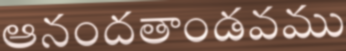
ఆనందతాండవము